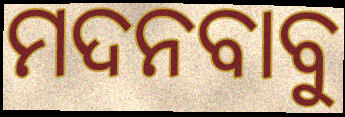
ମଦନବାବୁ